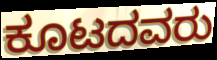
ಕೂಟದವರು